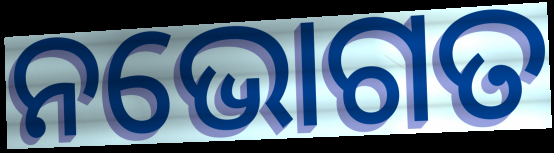
ନଭୋଗତ